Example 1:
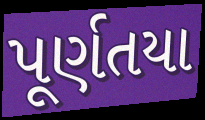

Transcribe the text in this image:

પૂર્ણતયા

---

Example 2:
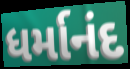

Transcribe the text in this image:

ધર્માનંદ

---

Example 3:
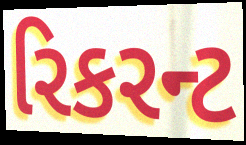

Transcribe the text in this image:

રિકરન્ટ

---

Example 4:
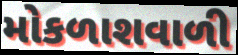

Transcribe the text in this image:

મોકળાશવાળી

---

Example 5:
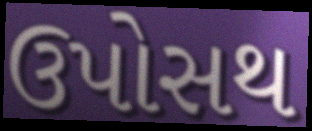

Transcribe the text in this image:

ઉપોસથ